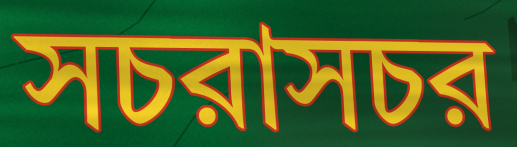
সচরাসচর